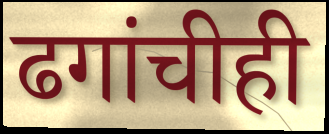
ढगांचीही